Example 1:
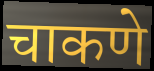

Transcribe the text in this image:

चाकणे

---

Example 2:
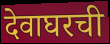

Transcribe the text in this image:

देवाघरची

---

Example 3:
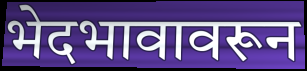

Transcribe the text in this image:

भेदभावावरून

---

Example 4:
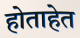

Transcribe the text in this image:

होताहेत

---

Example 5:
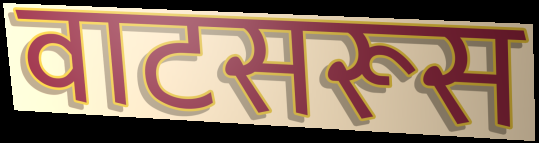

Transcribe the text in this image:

वाटसरूस